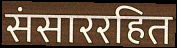
संसाररहित